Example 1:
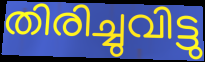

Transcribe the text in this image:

തിരിച്ചുവിട്ടു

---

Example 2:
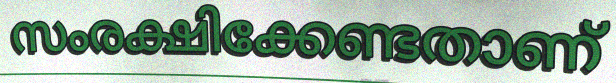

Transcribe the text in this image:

സംരക്ഷിക്കേണ്ടതാണ്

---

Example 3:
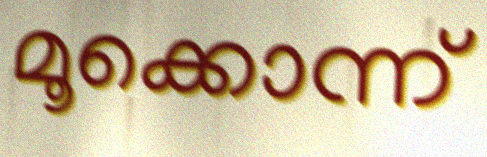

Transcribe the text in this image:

മൂക്കൊന്ന്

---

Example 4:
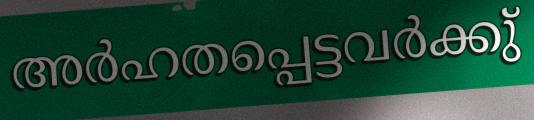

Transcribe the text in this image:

അർഹതപ്പെട്ടവർക്കു്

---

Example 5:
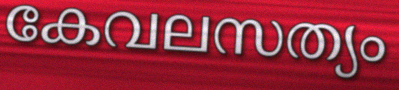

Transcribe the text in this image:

കേവലസത്യം